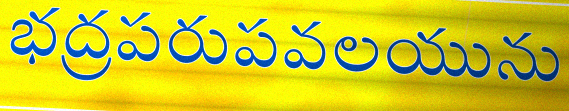
భద్రపరుపవలయును